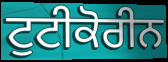
ਟੁਟੀਕੋਰੀਨ